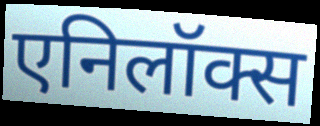
एनिलॉक्स